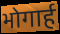
भोगार्ह